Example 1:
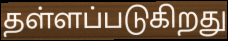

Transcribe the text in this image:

தள்ளப்படுகிறது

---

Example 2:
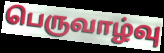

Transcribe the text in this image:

பெருவாழ்வு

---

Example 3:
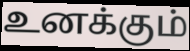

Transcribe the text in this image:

உனக்கும்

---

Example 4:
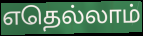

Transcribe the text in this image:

எதெல்லாம்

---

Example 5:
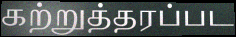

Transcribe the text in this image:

கற்றுத்தரப்பட